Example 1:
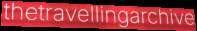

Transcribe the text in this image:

thetravellingarchive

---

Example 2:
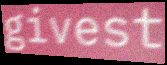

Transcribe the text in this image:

givest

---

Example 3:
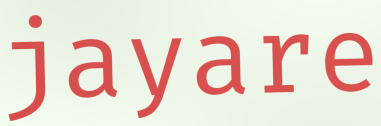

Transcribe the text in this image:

jayare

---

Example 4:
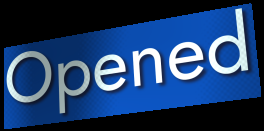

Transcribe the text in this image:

Opened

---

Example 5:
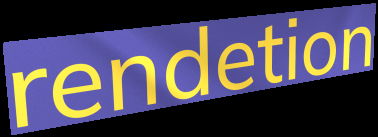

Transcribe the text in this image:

rendetion